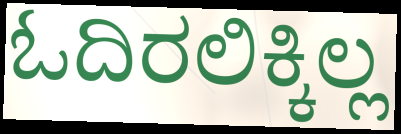
ಓದಿರಲಿಕ್ಕಿಲ್ಲ